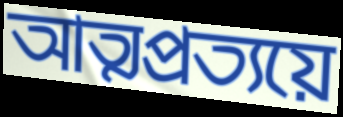
আত্মপ্রত্যয়ে